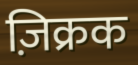
ज़िक्रक